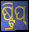
ଷ୍ଟ୍ରିପ୍